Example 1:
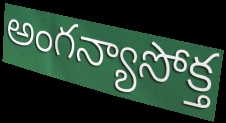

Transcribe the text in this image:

అంగన్యాసోక్త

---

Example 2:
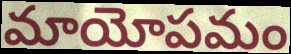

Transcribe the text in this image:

మాయోపమం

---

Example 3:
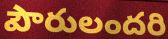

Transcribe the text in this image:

పౌరులందరి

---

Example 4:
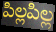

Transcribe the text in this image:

పిల్లపిల్ల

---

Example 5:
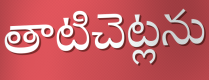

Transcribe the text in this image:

తాటిచెట్లను